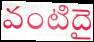
వంటిదై